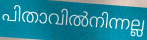
പിതാവിൽനിന്നല്ല